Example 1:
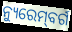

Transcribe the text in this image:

ନ୍ୟୁରେମ୍‌ବର୍ଗ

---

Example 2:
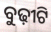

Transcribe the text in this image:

ବୁଢ଼ୀଟି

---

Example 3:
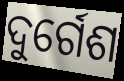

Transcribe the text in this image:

ଦୁର୍ଗେଶ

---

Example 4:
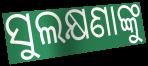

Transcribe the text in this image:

ସୁଲକ୍ଷଣାଙ୍କୁ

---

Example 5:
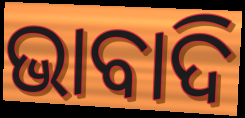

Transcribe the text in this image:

ଭାବାଦି